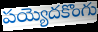
పయ్యెదకొంగు